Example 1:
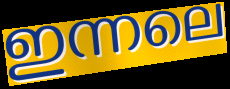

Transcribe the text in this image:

ഇന്നലെ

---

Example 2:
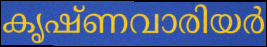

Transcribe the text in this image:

കൃഷ്ണവാരിയർ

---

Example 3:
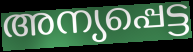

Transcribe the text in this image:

അന്യപ്പെട്ട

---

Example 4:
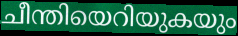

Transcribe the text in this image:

ചീന്തിയെറിയുകയും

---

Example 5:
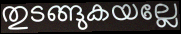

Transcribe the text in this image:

തുടങ്ങുകയല്ലേ